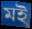
মই